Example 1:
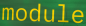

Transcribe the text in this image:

module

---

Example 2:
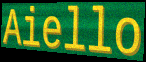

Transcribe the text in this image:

Aiello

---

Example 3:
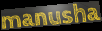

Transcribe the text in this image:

manusha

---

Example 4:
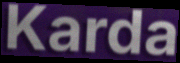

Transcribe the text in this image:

Karda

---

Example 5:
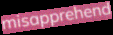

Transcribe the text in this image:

misapprehend